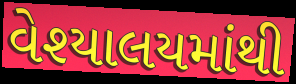
વેશ્યાલયમાંથી